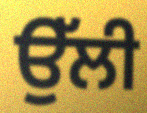
ਉੱਲੀ